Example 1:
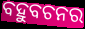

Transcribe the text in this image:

ବହୁବଚନର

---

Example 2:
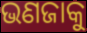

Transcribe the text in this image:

ଭଣଜାକୁ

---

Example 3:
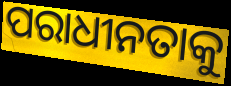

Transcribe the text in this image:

ପରାଧୀନତାକୁ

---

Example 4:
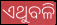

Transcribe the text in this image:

ଏଥୁବଳି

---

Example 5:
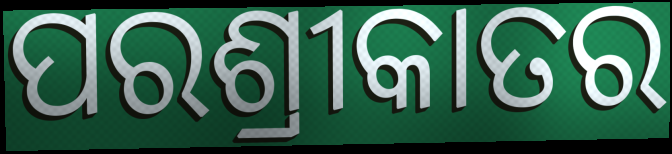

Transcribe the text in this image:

ପରଶ୍ରୀକାତର